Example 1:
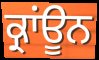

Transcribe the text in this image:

ਕ੍ਰਾਂਊਨ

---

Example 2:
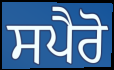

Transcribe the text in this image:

ਸਪੈਰੋ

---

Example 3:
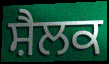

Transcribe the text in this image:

ਸ਼ੈਲਕ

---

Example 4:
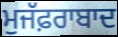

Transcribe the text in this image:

ਮੁਜੱਫ਼ਰਾਬਾਦ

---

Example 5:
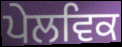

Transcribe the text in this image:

ਪੇਲਵਿਕ